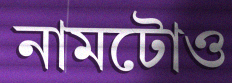
নামটোও